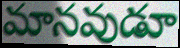
మానవుడూ